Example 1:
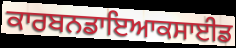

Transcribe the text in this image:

ਕਾਰਬਨਡਾਇਆਕਸਾਈਡ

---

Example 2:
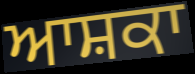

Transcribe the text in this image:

ਆਸ਼ਕਾ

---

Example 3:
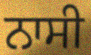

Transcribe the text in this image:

ਨਾਸੀ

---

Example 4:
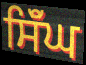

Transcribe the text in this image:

ਸਿੱੰਘ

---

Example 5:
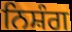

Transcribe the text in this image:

ਨਿਸ਼ੰਗ